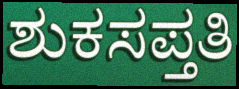
ಶುಕಸಪ್ತತಿ